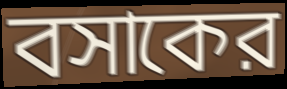
বসাকের